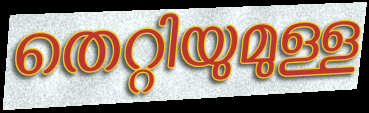
തെറ്റിയുമുള്ള